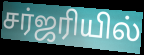
சர்ஜரியில்